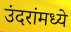
उंदरांमध्ये